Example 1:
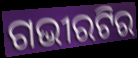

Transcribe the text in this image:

ଗଭୀରଟିର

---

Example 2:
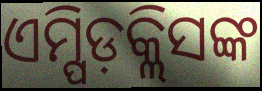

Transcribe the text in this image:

ଏମ୍ପିଡ଼କ୍ଲିସଙ୍କ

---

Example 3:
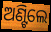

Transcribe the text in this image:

ଅଣ୍ଟିଲେ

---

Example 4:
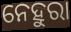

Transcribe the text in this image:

ନେହୁରା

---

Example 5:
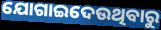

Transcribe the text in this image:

ଯୋଗାଇଦେଉଥିବାରୁ